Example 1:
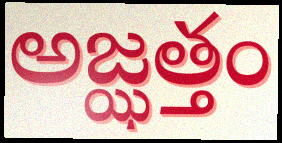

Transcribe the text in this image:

అజ్ఝత్తం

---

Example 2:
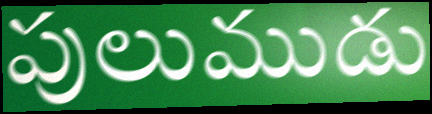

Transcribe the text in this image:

పులుముడు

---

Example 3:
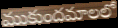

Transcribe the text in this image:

ముకుందమాలలో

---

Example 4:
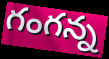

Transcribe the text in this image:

గంగన్న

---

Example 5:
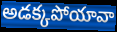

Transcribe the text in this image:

అడక్కపోయావా